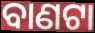
ବାଣଟା